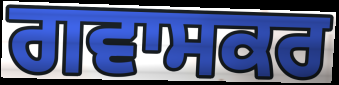
ਗਵਾਸਕਰ